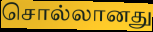
சொல்லானது